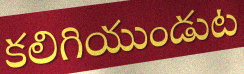
కలిగియుండుట